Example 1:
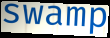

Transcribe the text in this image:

swamp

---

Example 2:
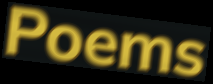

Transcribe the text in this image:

Poems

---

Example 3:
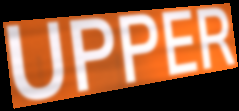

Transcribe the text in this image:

UPPER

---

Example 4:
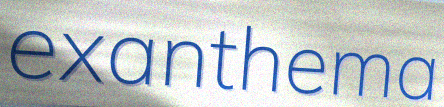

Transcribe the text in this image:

exanthema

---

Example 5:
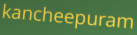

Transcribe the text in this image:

kancheepuram